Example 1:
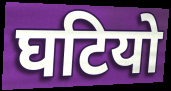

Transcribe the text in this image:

घटियो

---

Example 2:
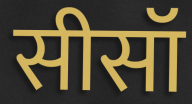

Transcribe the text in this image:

सीसॉ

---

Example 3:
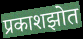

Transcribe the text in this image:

प्रकाशझोत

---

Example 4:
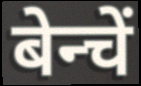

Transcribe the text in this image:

बेन्चें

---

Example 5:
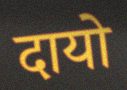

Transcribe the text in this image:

दायो